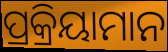
ପ୍ରକ୍ରିୟାମାନ